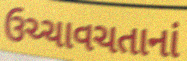
ઉચ્ચાવચતાનાં